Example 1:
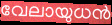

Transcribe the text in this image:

വേലായുധൻ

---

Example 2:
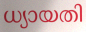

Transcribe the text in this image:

ധ്യായതി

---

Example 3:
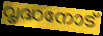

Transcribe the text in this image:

വൃദ്ധനോട്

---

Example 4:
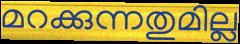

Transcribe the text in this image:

മറക്കുന്നതുമില്ല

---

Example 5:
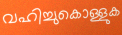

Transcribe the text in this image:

വഹിച്ചുകൊള്ളുക